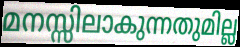
മനസ്സിലാകുന്നതുമില്ല